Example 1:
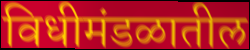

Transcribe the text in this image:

विधीमंडळातील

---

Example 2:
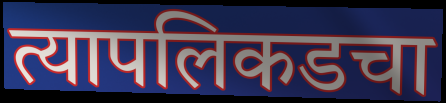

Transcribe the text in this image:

त्यापलिकडचा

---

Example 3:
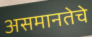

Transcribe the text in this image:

असमानतेचे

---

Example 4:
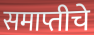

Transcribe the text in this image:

समाप्तीचे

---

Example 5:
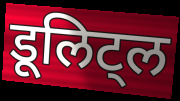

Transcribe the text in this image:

डूलिट्ल